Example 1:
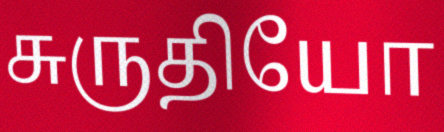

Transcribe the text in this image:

சுருதியோ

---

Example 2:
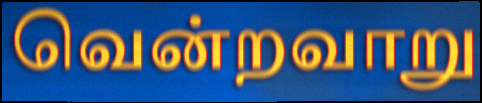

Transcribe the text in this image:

வென்றவாறு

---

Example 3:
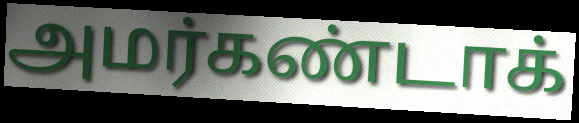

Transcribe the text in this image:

அமர்கண்டாக்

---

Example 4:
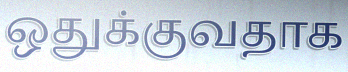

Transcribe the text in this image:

ஒதுக்குவதாக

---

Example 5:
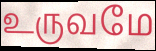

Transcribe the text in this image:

உருவமே